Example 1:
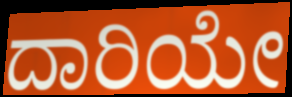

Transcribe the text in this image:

ದಾರಿಯೇ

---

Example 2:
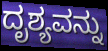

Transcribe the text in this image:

ದೃಶ್ಯವನ್ನು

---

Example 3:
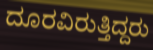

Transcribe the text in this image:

ದೂರವಿರುತ್ತಿದ್ದರು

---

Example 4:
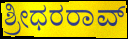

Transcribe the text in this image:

ಶ್ರೀಧರರಾವ್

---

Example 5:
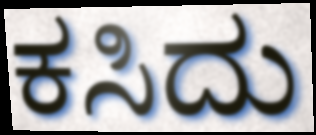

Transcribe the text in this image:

ಕಸಿದು